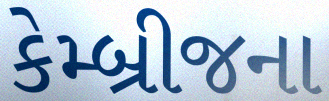
કેમ્બ્રીજના